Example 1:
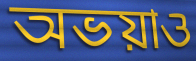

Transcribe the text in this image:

অভয়াও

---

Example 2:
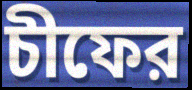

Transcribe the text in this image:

চীফের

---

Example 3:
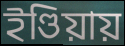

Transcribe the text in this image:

ইণ্ডিয়ায়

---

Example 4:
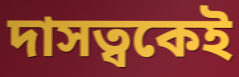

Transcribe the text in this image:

দাসত্বকেই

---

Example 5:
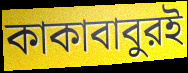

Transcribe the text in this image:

কাকাবাবুরই